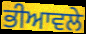
ਭੀਆਵਲੇ